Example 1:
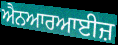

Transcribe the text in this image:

ਐਨਆਰਆਈਜ਼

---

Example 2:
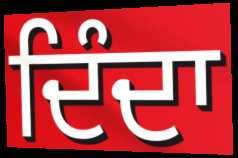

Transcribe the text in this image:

ਦਿੰਦਾ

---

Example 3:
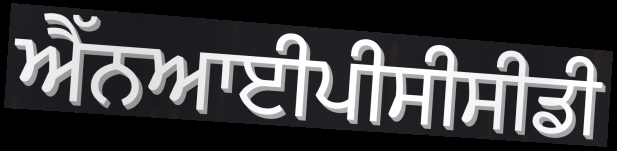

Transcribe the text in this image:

ਐੱਨਆਈਪੀਸੀਸੀਡੀ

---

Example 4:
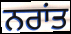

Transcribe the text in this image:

ਨਰਾਂਤ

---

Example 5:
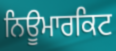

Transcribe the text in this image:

ਨਿਊਮਾਰਕਿਟ